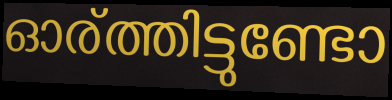
ഓര്ത്തിട്ടുണ്ടോ